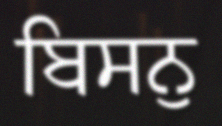
ਬਿਸਨੁ